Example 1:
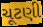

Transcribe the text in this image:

ચૂટણી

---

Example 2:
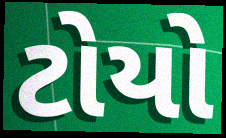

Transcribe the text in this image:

ટોયો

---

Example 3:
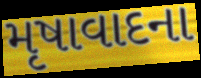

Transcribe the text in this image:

મૃષાવાદના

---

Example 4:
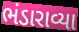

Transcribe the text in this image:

ભંડારાવ્યા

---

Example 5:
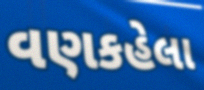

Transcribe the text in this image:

વણકહેલા